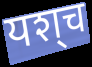
यश्च